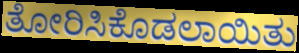
ತೋರಿಸಿಕೊಡಲಾಯಿತು